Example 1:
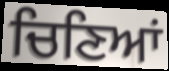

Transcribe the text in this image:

ਚਿਣਿਆਂ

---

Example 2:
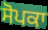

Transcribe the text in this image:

ਸੋਪਕਾ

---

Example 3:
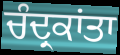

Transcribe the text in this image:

ਚੰਦ੍ਰਕਾਂਤਾ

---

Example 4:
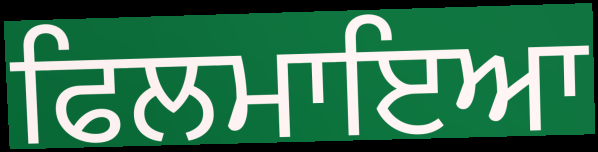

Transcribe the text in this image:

ਫਿਲਮਾਇਆ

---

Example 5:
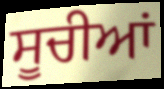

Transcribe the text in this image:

ਸੂਚੀਆਂ